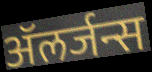
ॲलर्जन्स